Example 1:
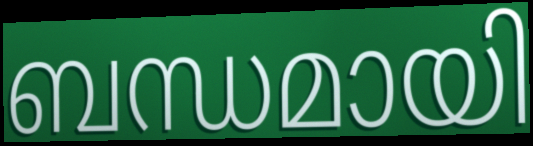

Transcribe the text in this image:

ബന്ധമായി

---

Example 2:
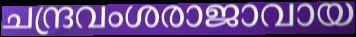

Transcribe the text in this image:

ചന്ദ്രവംശരാജാവായ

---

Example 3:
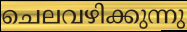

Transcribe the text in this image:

ചെലവഴിക്കുന്നു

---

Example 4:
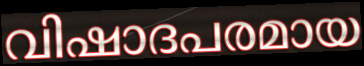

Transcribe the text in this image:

വിഷാദപരമായ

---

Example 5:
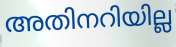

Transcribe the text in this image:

അതിനറിയില്ല